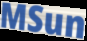
MSun